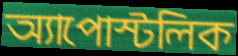
অ্যাপোস্টলিক